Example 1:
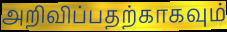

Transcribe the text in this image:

அறிவிப்பதற்காகவும்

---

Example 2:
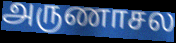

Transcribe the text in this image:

அருணாசல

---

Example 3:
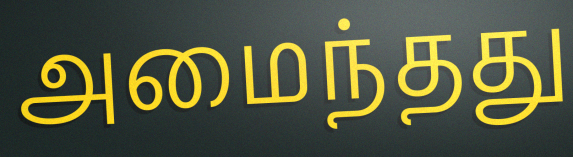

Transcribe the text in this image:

அமைந்தது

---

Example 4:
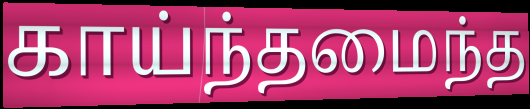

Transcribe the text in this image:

காய்ந்தமைந்த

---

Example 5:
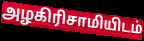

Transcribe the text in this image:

அழகிரிசாமியிடம்